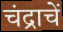
चंद्राचें